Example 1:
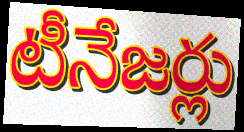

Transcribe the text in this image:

టీనేజర్లు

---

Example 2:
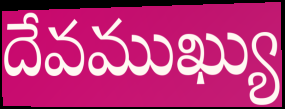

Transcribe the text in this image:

దేవముఖ్యు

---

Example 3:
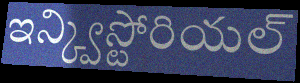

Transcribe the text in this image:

ఇన్క్విస్టోరియల్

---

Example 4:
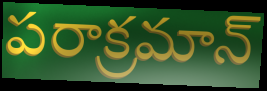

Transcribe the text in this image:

పరాక్రమాన్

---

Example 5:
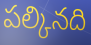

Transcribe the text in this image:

పల్కినది